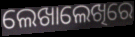
ଲେଖାଲେଖିରେ